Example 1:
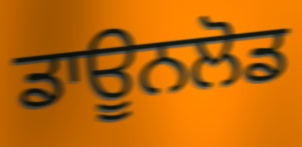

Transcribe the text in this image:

ਡਾਊਨਲੋਡ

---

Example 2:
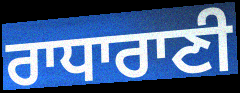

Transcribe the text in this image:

ਰਾਧਾਰਾਣੀ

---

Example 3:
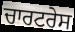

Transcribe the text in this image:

ਚਾਰਟਰੇਸ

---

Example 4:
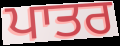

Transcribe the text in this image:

ਪਾਤਰ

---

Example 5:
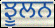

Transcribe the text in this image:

ਝੂਲਨ